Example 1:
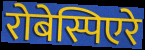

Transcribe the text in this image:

रोबेस्पिएरे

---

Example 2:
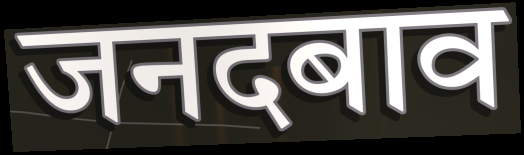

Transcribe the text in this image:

जनदबाव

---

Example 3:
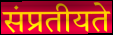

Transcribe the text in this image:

संप्रतीयते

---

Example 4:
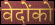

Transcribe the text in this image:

वेदोंको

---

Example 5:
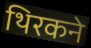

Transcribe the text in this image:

थिरकने